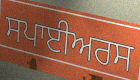
ਸਪਾਈਅਰਸ